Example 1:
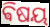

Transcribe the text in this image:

ଵିଷୟ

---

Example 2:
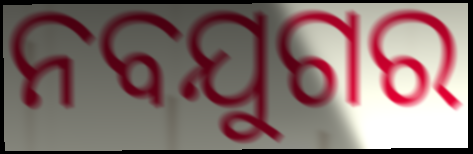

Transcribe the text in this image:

ନବଯୁଗର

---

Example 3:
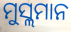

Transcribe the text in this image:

ମୁସ୍ଲମାନ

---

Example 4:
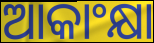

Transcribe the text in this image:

ଆକାଂକ୍ଷା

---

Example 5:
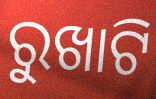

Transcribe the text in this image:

ରୁଖାଟି